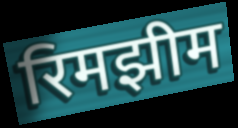
रिमझीम